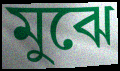
মুঝে